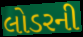
લોડરની